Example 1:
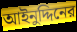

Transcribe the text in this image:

আইনুদ্দিনের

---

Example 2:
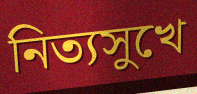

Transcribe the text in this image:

নিত্যসুখে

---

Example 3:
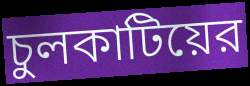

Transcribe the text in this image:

চুলকাটিয়ের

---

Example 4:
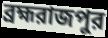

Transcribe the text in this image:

ব্রহ্মরাজপুর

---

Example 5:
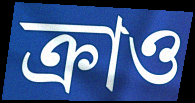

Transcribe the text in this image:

ক্রাও